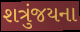
શત્રુંજયના